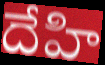
దేహి